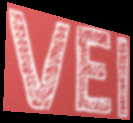
VEI